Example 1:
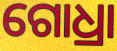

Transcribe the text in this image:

ଗୋଧ୍ରା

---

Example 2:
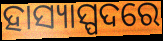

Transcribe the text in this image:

ହାସ୍ୟାସ୍ପଦରେ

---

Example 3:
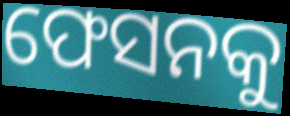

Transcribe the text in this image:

ଫେସନକୁ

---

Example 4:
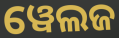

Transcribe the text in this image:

ୱେଲଜ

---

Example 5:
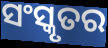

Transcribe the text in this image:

ସଂସ୍କୃତର